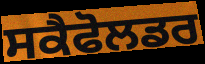
ਸਕੈਫੋਲਡਰ